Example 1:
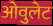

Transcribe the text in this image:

ओवुलेट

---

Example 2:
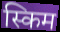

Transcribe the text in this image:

स्किम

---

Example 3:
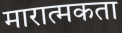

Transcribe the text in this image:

मारात्मकता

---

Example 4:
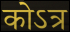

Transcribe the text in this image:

कोऽत्र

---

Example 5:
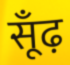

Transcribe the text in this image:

सूँढ़